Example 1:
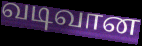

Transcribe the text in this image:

வடிவான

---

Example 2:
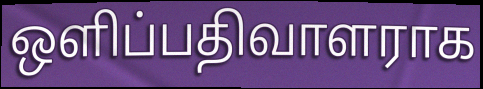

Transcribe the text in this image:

ஒளிப்பதிவாளராக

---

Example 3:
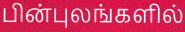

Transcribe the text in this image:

பின்புலங்களில்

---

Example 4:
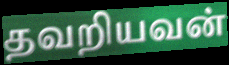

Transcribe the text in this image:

தவறியவன்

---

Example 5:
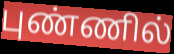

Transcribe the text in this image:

புண்ணில்